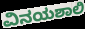
ವಿನಯಶಾಲಿ